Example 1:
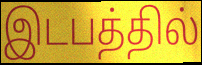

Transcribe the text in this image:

இடபத்தில்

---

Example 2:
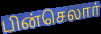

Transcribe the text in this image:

பின்செலார்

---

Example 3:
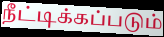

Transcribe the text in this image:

நீட்டிக்கப்படும்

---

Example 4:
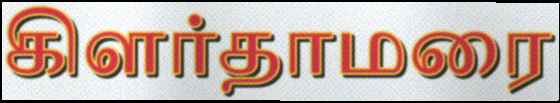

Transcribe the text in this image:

கிளர்தாமரை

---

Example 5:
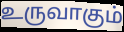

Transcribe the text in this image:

உருவாகும்